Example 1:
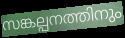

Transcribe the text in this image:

സങ്കല്പനത്തിനും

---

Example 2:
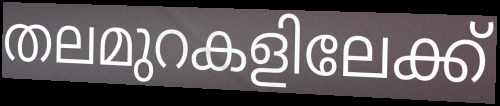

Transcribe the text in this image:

തലമുറകളിലേക്ക്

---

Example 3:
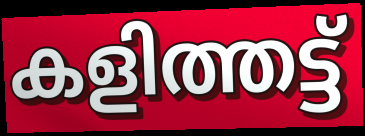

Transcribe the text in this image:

കളിത്തട്ട്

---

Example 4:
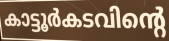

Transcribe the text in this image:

കാട്ടൂർകടവിന്റെ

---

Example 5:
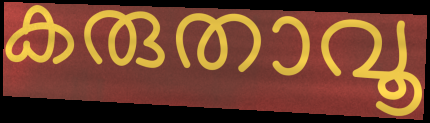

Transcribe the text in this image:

കരുതാവൂ